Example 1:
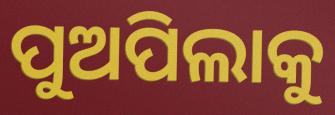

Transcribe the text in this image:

ପୁଅପିଲାକୁ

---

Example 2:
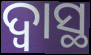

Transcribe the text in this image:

ଦ୍ୱାସ୍ଥ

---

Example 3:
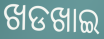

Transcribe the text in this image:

ଖଡଖାଇ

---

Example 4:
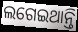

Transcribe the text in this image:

ଲଗେଇଥାନ୍ତି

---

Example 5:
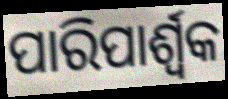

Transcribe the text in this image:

ପାରିପାର୍ଶ୍ଵକ